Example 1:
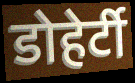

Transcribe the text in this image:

डोहेर्टी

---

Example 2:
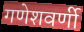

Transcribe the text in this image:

गणेशवर्णी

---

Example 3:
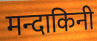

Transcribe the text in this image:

मन्दाकिनी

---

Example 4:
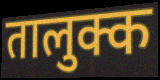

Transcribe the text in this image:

तालुक्क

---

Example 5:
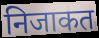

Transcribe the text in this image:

निजाकत